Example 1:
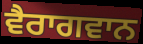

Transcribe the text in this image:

ਵੈਰਾਗਵਾਨ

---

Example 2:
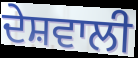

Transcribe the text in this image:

ਦੇਸ਼ਵਾਲੀ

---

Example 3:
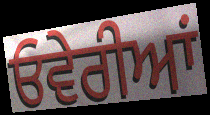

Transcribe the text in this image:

ਓਵੇਰੀਆਂ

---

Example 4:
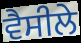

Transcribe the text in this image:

ਵੈਸੀਲੇ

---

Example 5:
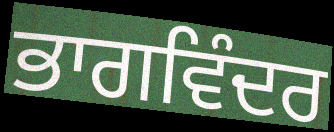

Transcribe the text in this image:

ਭਾਗਵਿੰਦਰ